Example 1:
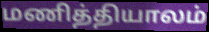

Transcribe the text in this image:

மணித்தியாலம்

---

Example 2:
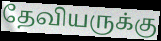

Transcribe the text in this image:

தேவியருக்கு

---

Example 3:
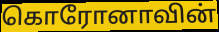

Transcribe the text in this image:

கொரோனாவின்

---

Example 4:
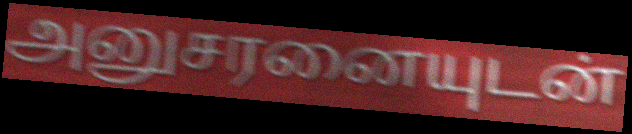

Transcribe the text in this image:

அனுசரனையுடன்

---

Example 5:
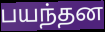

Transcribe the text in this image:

பயந்தன